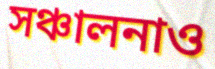
সঞ্চালনাও